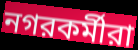
নগরকর্মীরা